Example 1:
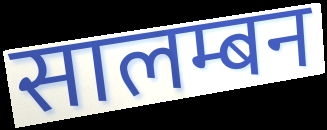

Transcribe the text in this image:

सालम्बन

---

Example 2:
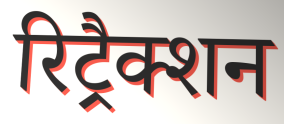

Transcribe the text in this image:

रिट्रैक्शन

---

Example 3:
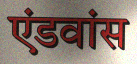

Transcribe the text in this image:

एंडवांस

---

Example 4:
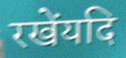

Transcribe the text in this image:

रखेंयदि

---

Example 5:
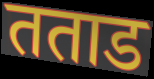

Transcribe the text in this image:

तताड